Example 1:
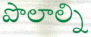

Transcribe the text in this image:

పొలాల్ని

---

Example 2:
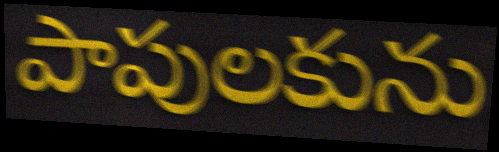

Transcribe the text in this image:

పాపులకును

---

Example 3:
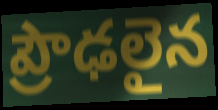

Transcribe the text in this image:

ప్రౌఢలైన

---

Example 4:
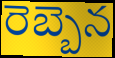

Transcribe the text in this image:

రెబ్బెన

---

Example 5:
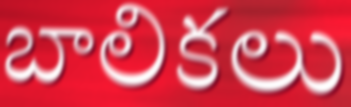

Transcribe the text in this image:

బాలికలు